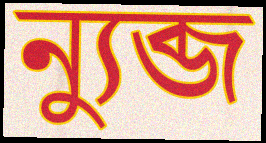
ন্যুব্জ